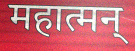
महात्मन्